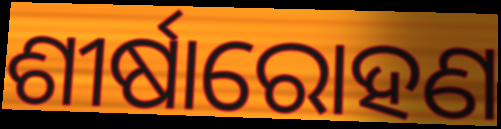
ଶୀର୍ଷାରୋହଣ